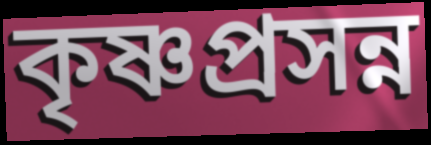
কৃষ্ণপ্রসন্ন